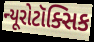
ન્યૂરોટૉક્સિક